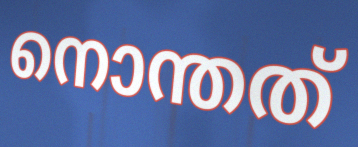
നൊന്തത്